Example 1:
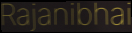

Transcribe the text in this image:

Rajanibhai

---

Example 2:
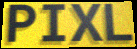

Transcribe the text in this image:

PIXL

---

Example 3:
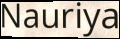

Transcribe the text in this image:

Nauriya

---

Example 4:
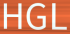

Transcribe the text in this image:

HGL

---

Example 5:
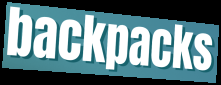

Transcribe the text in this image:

backpacks